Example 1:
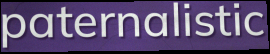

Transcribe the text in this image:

paternalistic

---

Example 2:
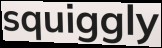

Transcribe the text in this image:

squiggly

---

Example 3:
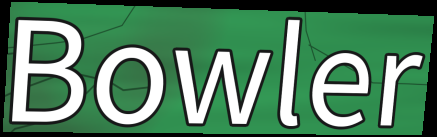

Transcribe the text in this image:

Bowler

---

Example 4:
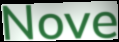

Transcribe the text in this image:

Nove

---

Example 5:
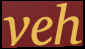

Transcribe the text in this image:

veh